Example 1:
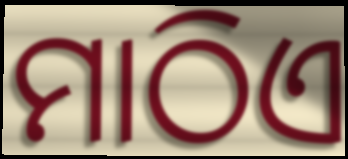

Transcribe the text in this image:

ମାଠିଏ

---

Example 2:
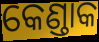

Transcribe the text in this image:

କେଣ୍ଡାକ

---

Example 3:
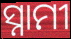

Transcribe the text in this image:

ସ୍ନାମୀ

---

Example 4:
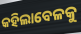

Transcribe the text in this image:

କହିଲାବେଳକୁ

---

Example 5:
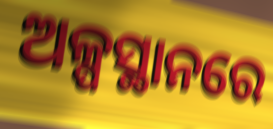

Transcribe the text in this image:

ଅଳ୍ପସ୍ଥାନରେ